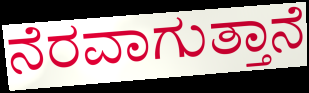
ನೆರವಾಗುತ್ತಾನೆ